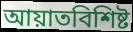
আয়াতবিশিষ্ট